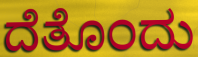
ದೆತೊಂದು